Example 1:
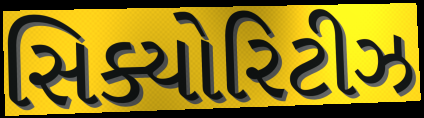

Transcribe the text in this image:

સિક્યોરિટીઝ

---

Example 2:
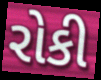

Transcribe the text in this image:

રોકી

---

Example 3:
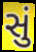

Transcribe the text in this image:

સું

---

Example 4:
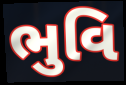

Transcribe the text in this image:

ભુવિ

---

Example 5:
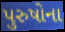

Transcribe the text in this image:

પુરુષોના